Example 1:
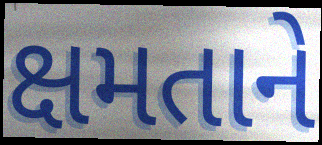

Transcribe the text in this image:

ક્ષમતાને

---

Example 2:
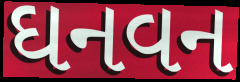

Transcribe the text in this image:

ઘનવન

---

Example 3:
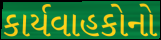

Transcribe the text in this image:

કાર્યવાહકોનો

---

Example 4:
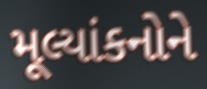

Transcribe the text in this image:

મૂલ્યાંકનોને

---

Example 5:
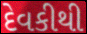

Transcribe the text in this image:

દેવકીથી